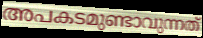
അപകടമുണ്ടാവുന്നത്